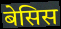
बेसिस